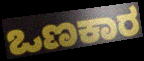
ಒಣಕಾರ